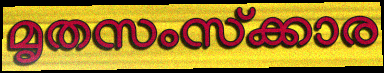
മൃതസംസ്‌ക്കാര